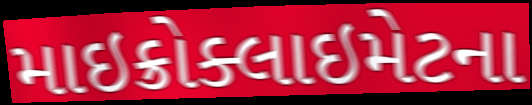
માઇક્રોક્લાઇમેટના